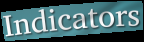
Indicators